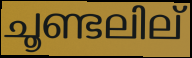
ചൂണ്ടലില്